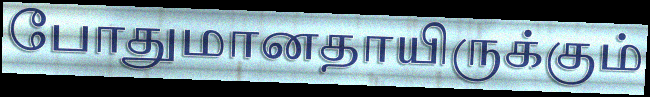
போதுமானதாயிருக்கும்